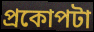
প্রকোপটা